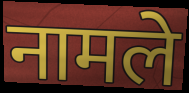
नामले